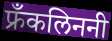
फ्रँकलिननी